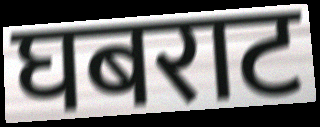
घबराट